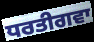
ਧਰਤੀਗਵਾ